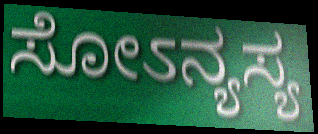
ಸೋಽನ್ಯಸ್ಯ